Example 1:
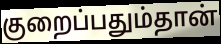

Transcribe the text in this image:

குறைப்பதும்தான்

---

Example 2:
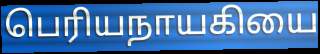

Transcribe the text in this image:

பெரியநாயகியை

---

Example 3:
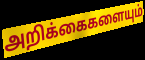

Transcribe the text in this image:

அறிக்கைகளையும்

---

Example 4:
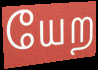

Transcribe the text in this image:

யேற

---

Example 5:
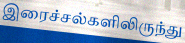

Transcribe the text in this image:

இரைச்சல்களிலிருந்து